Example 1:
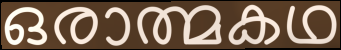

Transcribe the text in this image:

ഒരാത്മകഥ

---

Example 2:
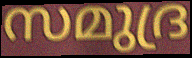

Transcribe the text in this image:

സമുദ്ര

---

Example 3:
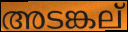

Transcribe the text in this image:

അടങ്കല്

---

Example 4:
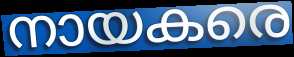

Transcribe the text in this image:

നായകരെ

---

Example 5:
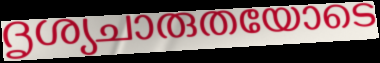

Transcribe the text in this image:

ദൃശ്യചാരുതയോടെ